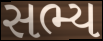
સભ્ય